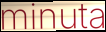
minuta